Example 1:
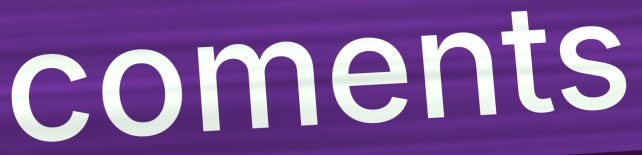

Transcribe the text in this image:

coments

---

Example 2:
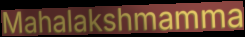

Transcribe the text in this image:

Mahalakshmamma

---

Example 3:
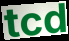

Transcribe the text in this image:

tcd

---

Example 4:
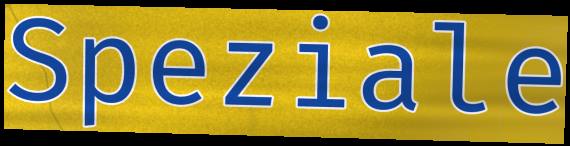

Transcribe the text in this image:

Speziale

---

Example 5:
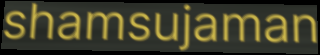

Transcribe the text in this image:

shamsujaman